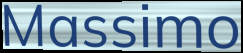
Massimo